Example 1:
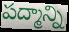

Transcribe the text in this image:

పద్మాన్ని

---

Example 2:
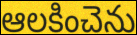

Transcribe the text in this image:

ఆలకించెను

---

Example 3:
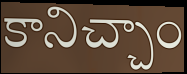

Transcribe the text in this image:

కానిచ్చాం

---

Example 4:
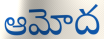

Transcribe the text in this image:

ఆమోద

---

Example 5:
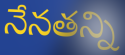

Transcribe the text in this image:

నేనతన్ని